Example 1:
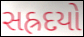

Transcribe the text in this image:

સહ્રદયો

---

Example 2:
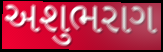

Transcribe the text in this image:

અશુભરાગ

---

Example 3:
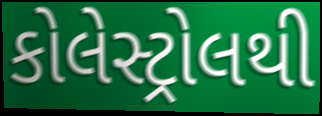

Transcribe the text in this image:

કોલેસ્ટ્રોલથી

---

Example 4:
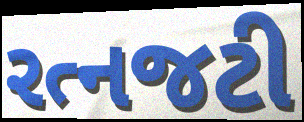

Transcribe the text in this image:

રત્નજટી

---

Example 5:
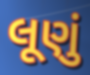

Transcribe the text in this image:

લૂણું